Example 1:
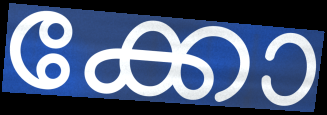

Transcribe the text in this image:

ക്കോ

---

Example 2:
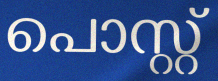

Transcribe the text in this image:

പൊസ്റ്റ്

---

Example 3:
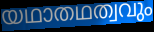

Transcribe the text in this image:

യഥാതഥത്വവും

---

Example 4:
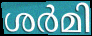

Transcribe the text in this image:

ശർമി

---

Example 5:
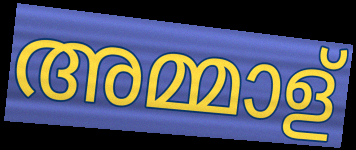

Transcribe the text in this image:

അമ്മാള്